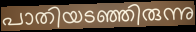
പാതിയടഞ്ഞിരുന്നു